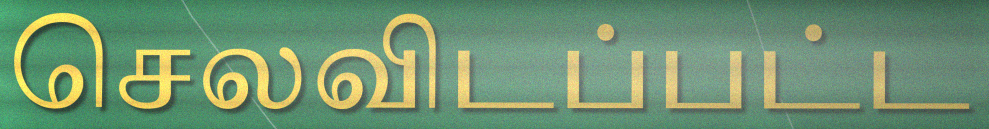
செலவிடப்பட்ட